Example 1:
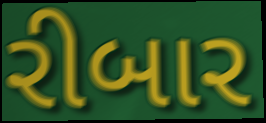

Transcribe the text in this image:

રીબાર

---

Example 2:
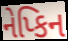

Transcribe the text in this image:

નેપ્કિન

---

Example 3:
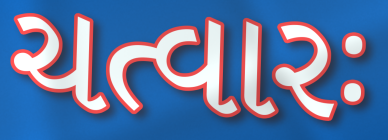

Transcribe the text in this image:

ચત્વારઃ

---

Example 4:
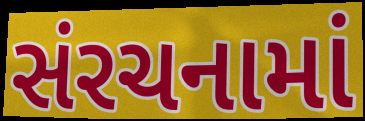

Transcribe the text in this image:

સંરચનામાં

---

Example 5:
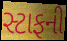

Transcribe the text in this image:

સ્ટાફની